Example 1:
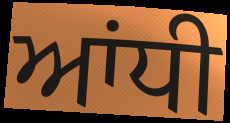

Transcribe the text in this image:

ਆਂਧੀ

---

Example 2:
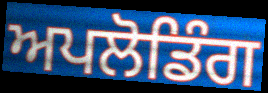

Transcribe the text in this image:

ਅਪਲੋਡਿੰਗ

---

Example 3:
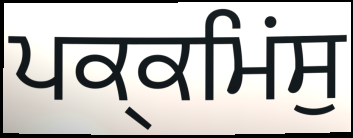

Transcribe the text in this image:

ਪਕ੍ਕਮਿਂਸੁ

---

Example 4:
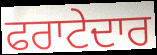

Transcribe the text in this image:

ਫਰਾਟੇਦਾਰ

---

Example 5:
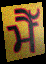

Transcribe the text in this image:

ਮੈੱ